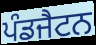
ਪੰਡਜੈਟਨ